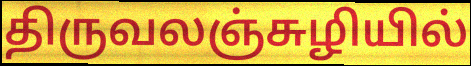
திருவலஞ்சுழியில்